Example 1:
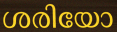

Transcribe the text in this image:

ശരിയോ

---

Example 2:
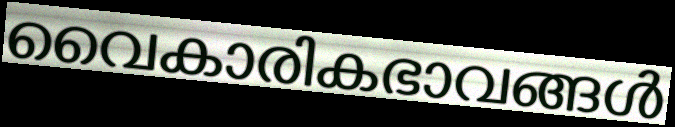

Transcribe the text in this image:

വൈകാരികഭാവങ്ങൾ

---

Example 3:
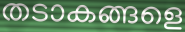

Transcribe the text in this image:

തടാകങ്ങളെ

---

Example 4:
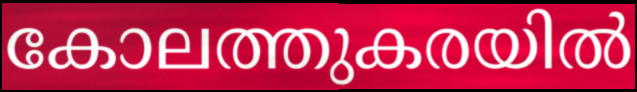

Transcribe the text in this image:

കോലത്തുകരയിൽ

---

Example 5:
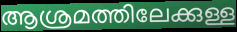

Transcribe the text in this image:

ആശ്രമത്തിലേക്കുള്ള